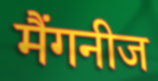
मैंगनीज